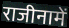
राजीनामें